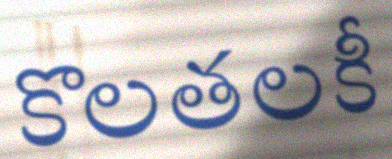
కొలతలకీ